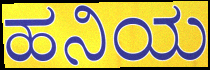
ಹನಿಯ